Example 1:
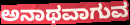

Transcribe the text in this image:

ಅನಾಥವಾಗುವ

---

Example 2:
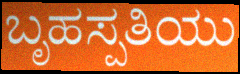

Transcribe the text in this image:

ಬೃಹಸ್ಪತಿಯು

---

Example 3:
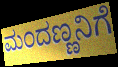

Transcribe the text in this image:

ಮಂದಣ್ಣನಿಗೆ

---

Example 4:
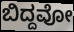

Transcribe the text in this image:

ಬಿದ್ದವೋ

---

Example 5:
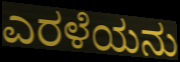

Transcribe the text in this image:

ಎರಳೆಯನು